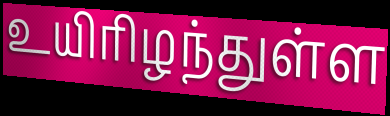
உயிரிழந்துள்ள